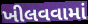
ખીલવવામાં